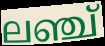
ലഞ്ച്